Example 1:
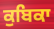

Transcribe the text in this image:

ਕੁਬਿਕਾ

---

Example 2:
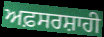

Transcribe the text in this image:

ਅਫ਼ਸਰਸ਼ਾਹੀ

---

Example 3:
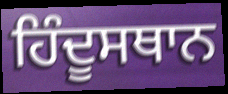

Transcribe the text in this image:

ਹਿੰਦੂਸਥਾਨ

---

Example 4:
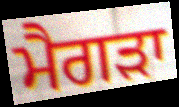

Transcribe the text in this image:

ਮੈਗੜਾ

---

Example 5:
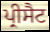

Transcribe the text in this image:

ਪ੍ਰੀਸੈਟ